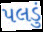
પલડું